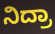
ನಿದ್ರಾ